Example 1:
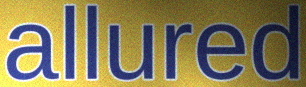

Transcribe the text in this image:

allured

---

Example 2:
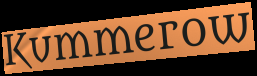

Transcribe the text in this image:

Kummerow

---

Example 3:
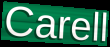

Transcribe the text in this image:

Carell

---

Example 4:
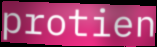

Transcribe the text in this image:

protien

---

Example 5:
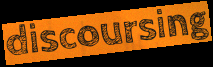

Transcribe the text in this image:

discoursing